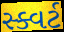
સ્ક્વર્ટ